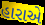
હારાએ